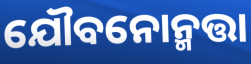
ଯୌବନୋନ୍ମତ୍ତା